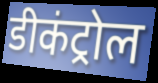
डीकंट्रोल